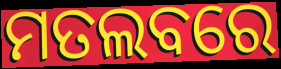
ମତଲବରେ